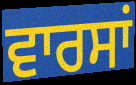
ਵਾਰਸਾਂ